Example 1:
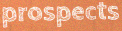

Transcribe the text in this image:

prospects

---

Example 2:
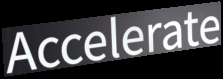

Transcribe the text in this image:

Accelerate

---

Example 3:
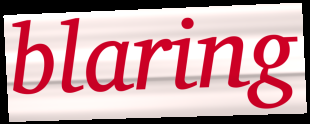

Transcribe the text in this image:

blaring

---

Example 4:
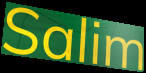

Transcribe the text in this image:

Salim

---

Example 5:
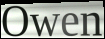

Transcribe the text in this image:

Owen